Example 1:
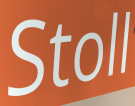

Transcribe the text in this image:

Stoll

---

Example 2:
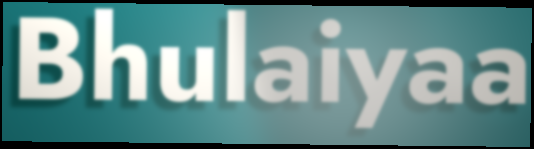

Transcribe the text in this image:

Bhulaiyaa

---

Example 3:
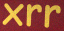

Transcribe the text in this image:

xrr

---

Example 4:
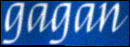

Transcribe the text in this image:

gagan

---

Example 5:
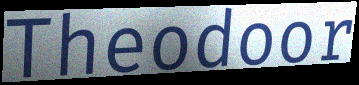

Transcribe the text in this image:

Theodoor